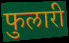
फुलारी